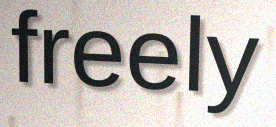
freely